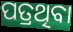
ପତ୍ରଥିବା